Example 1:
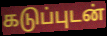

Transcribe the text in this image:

கடுப்புடன்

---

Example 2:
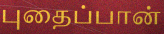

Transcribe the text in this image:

புதைப்பான்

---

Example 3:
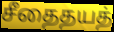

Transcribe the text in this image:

சீதைதயத்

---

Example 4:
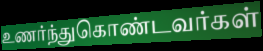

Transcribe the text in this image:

உணர்ந்துகொண்டவர்கள்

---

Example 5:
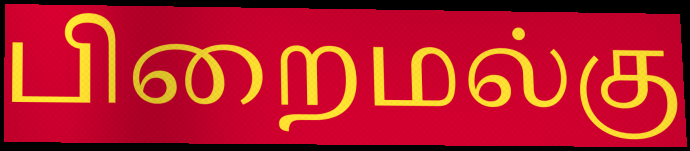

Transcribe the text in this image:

பிறைமல்கு